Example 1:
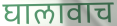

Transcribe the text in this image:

घालावाच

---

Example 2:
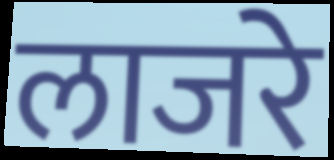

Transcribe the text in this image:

लाजरे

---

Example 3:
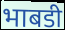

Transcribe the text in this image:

भाबडी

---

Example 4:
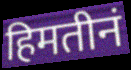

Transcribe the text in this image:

हिमतीनं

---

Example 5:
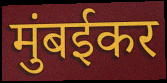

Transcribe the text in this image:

मुंबईकर